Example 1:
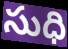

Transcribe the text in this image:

సుధి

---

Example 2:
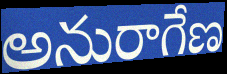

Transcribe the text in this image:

అనురాగేణ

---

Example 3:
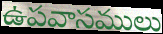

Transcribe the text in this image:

ఉపవాసములు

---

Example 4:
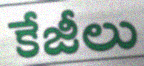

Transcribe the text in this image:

కేజీలు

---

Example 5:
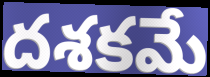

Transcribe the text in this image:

దశకమే